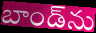
బాండ్‌ను